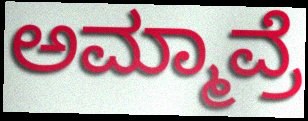
ಅಮ್ಮಾವ್ರೆ